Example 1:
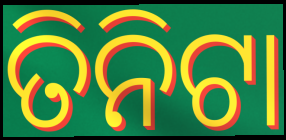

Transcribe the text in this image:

ତିନିଟା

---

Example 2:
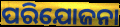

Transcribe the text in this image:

ପରିଯୋଜନା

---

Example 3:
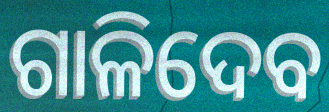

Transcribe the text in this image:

ଗାଳିଦେବ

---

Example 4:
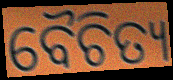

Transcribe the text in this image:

ବୈଚିତ୍ୟ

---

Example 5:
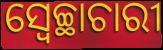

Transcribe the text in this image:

ସ୍ୱେଚ୍ଛାଚାରୀ